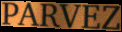
PARVEZ